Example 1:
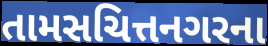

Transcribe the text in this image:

તામસચિત્તનગરના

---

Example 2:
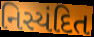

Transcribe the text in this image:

નિસ્યંદિત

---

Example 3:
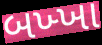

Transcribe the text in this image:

બખ્ખા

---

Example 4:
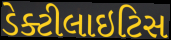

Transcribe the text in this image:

ડેક્ટીલાઇટિસ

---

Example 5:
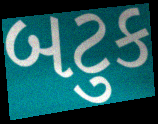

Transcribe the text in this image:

બટુક